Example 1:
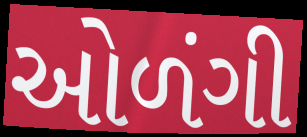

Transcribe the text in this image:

ઓળંગી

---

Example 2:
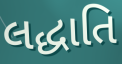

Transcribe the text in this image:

લદ્ધાતિ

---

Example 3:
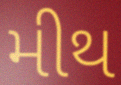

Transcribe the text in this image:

મીથ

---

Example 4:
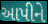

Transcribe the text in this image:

આપીને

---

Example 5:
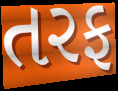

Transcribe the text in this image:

તરફ